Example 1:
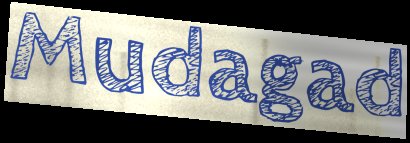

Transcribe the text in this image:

Mudagad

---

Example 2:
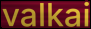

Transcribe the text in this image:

valkai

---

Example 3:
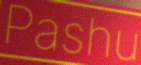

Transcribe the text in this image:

Pashu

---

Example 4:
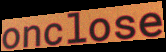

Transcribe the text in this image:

onclose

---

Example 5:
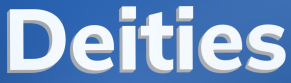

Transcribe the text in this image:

Deities